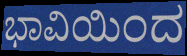
ಭಾವಿಯಿಂದ